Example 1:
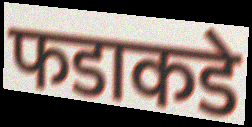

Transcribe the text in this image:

फडाकडे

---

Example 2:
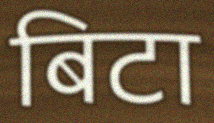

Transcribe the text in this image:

बिटा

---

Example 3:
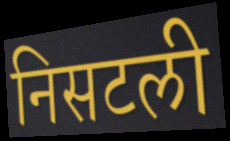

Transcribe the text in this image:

निसटली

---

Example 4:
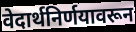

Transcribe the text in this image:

वेदार्थनिर्णयावरून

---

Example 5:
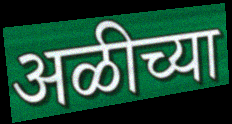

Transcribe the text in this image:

अळीच्या